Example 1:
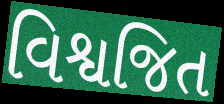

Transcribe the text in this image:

વિશ્વજિત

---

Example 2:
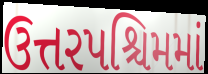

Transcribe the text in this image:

ઉત્તરપશ્ચિમમાં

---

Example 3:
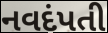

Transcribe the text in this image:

નવદંપતી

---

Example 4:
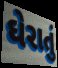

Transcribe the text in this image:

ઘેરાતું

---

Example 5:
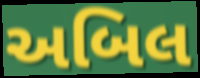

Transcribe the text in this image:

અબિલ